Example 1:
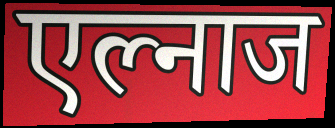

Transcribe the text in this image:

एल्नाज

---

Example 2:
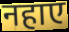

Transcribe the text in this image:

नहाए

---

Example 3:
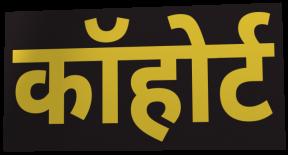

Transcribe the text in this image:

कॉहोर्ट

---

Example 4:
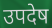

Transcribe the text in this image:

उपदेष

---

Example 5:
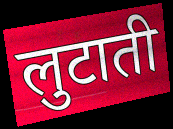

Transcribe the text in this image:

लुटाती